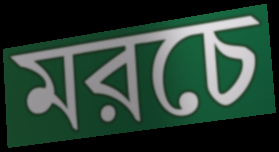
মরচে